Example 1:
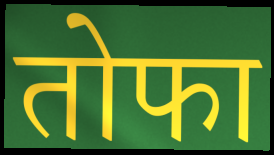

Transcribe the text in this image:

तोफा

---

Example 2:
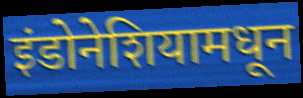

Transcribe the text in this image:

इंडोनेशियामधून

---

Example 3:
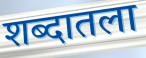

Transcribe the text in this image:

शब्दातला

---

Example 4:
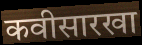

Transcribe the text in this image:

कवीसारखा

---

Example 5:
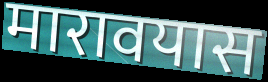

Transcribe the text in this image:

मारावयास